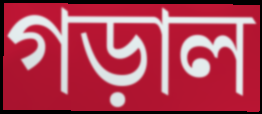
গড়াল